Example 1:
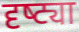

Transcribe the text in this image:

दृष्ट्या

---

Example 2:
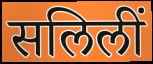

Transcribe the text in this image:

सलिलीं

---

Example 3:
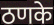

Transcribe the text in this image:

ठणके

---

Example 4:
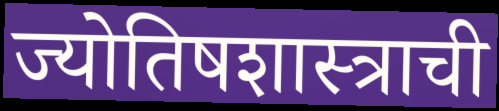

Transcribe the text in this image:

ज्योतिषशास्त्राची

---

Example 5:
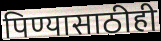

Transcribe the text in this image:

पिण्यासाठीही